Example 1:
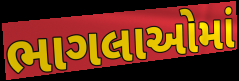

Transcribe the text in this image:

ભાગલાઓમાં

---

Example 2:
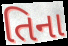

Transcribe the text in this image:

તિના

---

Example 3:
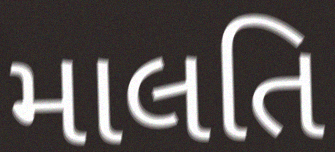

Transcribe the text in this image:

માલતિ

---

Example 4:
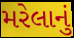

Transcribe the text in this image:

મરેલાનું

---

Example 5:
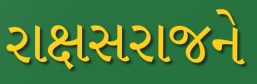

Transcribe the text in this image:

રાક્ષસરાજને